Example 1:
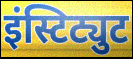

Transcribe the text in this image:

इंस्टिट्युट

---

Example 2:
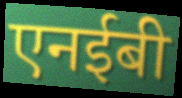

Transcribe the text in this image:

एनईबी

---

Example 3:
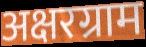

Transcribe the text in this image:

अक्षरग्राम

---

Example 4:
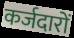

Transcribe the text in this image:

कर्जदारों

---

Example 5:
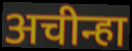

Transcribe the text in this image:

अचीन्हा